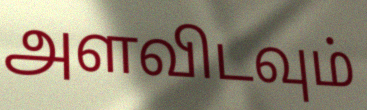
அளவிடவும்